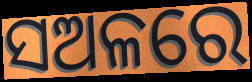
ସଅଳରେ